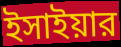
ইসাইয়ার